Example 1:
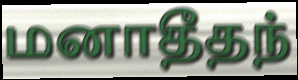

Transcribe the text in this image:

மனாதீதந்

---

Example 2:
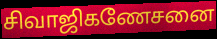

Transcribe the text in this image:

சிவாஜிகணேசனை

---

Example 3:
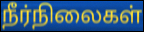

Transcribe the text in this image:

நீர்நிலைகள்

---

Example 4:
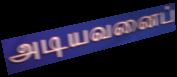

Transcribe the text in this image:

அடியவனைப்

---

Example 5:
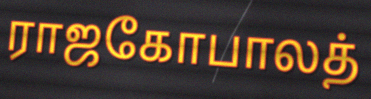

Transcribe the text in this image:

ராஜகோபாலத்